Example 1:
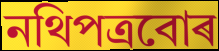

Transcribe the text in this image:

নথিপত্ৰবোৰ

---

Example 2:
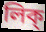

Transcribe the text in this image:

লিক্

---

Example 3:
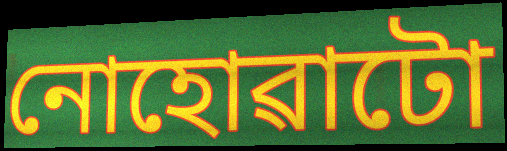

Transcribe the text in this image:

নোহোৱাটো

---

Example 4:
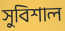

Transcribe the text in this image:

সুবিশাল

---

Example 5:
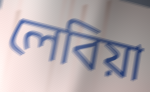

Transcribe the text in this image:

লেবিয়া